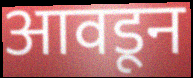
आवडून